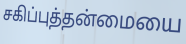
சகிப்புத்தன்மையை